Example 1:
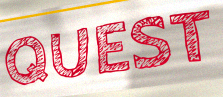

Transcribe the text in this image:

QUEST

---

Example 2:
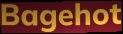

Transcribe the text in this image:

Bagehot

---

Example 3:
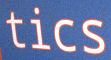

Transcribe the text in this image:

tics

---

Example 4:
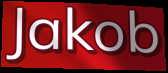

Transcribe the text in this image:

Jakob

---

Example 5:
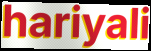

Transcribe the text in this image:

hariyali